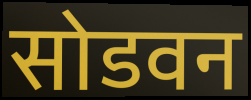
सोडवन